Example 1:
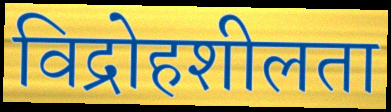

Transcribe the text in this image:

विद्रोहशीलता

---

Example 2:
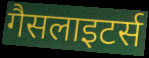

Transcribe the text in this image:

गैसलाइटर्स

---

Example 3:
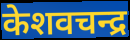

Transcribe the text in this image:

केशवचन्द्र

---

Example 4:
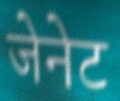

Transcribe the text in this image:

जेनेट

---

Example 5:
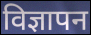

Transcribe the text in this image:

विज्ञापन